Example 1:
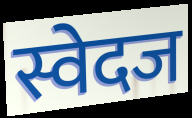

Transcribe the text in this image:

स्वेदज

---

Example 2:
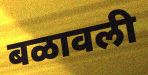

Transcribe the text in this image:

बळावली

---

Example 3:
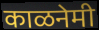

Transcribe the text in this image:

काळनेमी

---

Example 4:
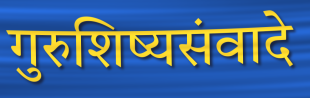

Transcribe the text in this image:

गुरुशिष्यसंवादे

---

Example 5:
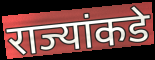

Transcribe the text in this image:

राज्यांकडे